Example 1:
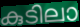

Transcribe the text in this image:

കുടിലാ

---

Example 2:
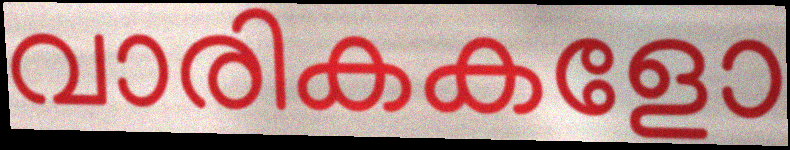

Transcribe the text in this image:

വാരികകളോ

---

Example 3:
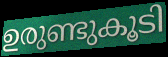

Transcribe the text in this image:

ഉരുണ്ടുകൂടി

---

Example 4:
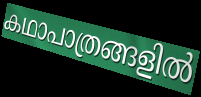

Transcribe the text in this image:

കഥാപാത്രങ്ങളിൽ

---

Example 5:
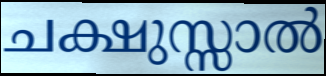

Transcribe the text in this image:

ചക്ഷുസ്സാൽ